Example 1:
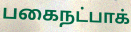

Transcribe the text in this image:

பகைநட்பாக்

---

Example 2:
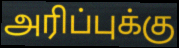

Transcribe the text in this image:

அரிப்புக்கு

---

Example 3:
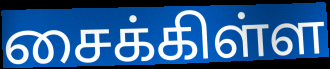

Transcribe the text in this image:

சைக்கிள்ள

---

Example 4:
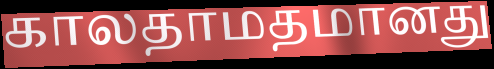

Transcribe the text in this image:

காலதாமதமானது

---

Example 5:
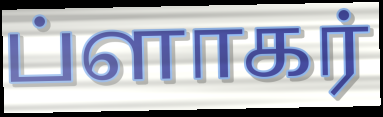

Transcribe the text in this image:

ப்ளாகர்